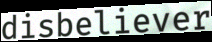
disbeliever